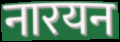
नारयन